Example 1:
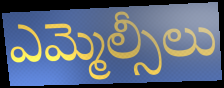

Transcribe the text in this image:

ఎమ్మెల్సీలు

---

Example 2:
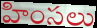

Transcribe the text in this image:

హింసలు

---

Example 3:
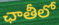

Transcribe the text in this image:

ఛాతీలో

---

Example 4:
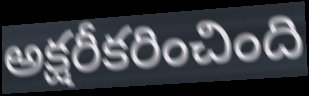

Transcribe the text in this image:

అక్షరీకరించింది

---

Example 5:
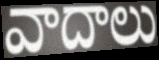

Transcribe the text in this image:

వాదాలు